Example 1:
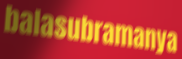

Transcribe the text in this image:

balasubramanya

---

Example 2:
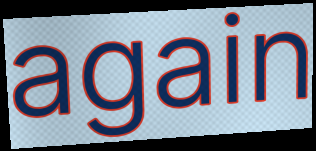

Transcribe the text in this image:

again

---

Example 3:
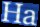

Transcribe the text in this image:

Ha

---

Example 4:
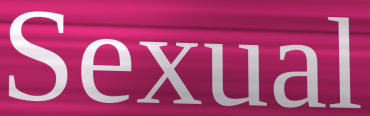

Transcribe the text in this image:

Sexual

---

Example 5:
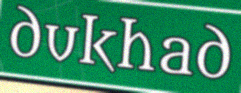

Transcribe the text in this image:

dukhad